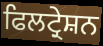
ਫਿਲਟ੍ਰੇਸ਼ਨ